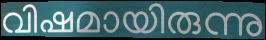
വിഷമായിരുന്നു